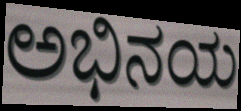
ಅಭಿನಯ